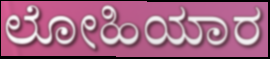
ಲೋಹಿಯಾರ